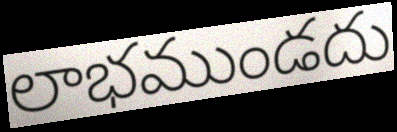
లాభముండదు